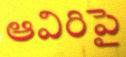
ఆవిరిపై